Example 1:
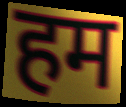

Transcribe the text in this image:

हम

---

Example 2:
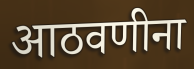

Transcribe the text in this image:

आठवणीना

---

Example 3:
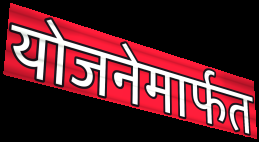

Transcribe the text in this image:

योजनेमार्फत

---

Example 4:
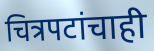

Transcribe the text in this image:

चित्रपटांचाही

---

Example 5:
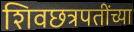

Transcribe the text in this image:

शिवछत्रपतींच्या